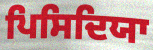
ਪਿਸਿਦਿਯਾ